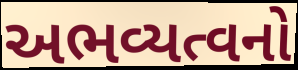
અભવ્યત્વનો